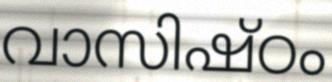
വാസിഷ്ഠം